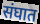
संघात